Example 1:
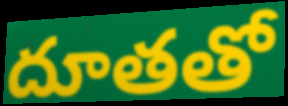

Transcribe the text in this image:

దూతతో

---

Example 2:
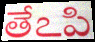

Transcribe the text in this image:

తేఽపి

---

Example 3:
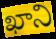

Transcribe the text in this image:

ఖాని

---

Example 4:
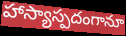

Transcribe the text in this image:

హాస్యాస్పదంగానూ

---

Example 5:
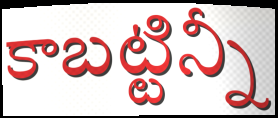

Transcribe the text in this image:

కాబట్టిన్నీ